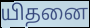
யிதனை